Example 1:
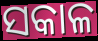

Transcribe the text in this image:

ସକାଳ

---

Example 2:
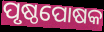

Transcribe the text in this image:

ପୃଷ୍ଠପୋଷକ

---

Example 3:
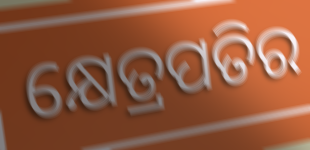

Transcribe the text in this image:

କ୍ଷେତ୍ରପତିର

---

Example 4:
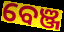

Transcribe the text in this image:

ବେଞ୍ଜ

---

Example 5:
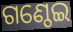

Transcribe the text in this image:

ଗଣ୍ଠେଇ